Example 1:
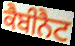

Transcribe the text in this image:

ਕੈਬੀਨੈਟ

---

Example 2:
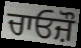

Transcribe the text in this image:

ਚਾਓਜ਼ੌ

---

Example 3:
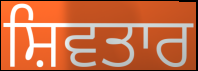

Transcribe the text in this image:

ਸ਼ਿਵਤਾਰ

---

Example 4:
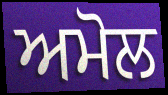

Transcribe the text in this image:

ਅਮੋਲ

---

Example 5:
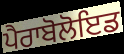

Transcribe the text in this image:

ਪੈਰਾਬੋਲੋਇਡ